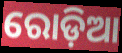
ରୋଡ଼ିଆ